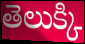
తెలుక్కి